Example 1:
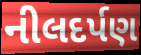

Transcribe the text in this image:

નીલદર્પણ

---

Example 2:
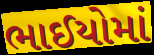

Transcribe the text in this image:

ભાઈયોમાં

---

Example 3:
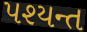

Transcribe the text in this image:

પશ્યન્ત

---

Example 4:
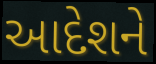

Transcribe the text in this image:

આદેશને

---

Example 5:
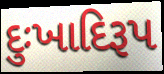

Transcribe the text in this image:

દુઃખાદિરૂપ